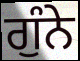
ਗੁੰਨੇ